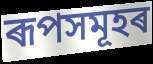
ৰূপসমূহৰ